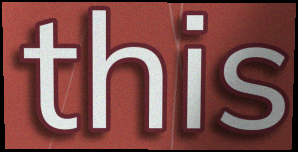
this